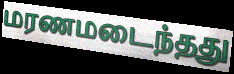
மரணமடைந்தது